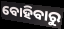
ବୋହିବାରୁ